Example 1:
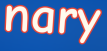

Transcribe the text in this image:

nary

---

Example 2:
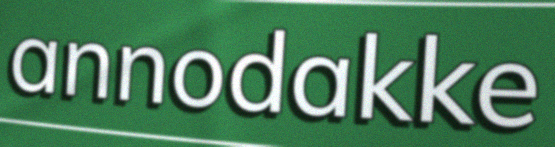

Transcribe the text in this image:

annodakke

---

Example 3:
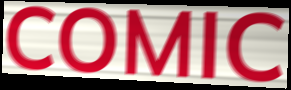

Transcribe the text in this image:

COMIC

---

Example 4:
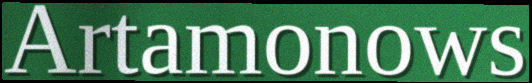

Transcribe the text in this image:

Artamonows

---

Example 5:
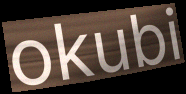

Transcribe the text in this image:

okubi